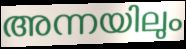
അന്നയിലും